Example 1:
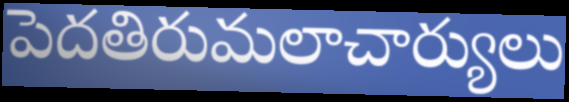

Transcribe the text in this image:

పెదతిరుమలాచార్యులు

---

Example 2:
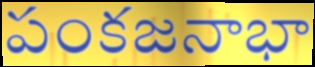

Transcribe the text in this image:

పంకజనాభా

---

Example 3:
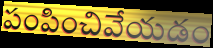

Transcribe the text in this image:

పంపించివేయడం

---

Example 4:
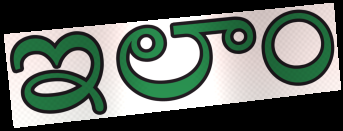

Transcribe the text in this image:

ఇలాం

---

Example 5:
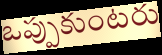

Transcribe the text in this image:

ఒప్పుకుంటరు